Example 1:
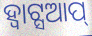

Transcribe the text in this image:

ହ୍ବାଟ୍ସଆପ୍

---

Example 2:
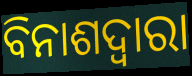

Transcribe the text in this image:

ବିନାଶଦ୍ଵାରା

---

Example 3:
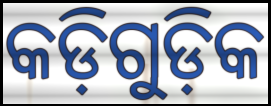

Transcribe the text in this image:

କଡ଼ିଗୁଡ଼ିକ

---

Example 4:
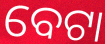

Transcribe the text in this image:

ବେଟା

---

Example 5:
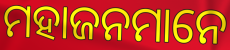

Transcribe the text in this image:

ମହାଜନମାନେ